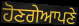
ਹੋਣਗੇਆਪਣੇ